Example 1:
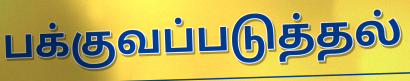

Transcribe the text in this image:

பக்குவப்படுத்தல்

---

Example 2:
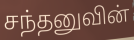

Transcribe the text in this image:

சந்தனுவின்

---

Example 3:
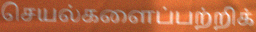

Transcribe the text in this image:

செயல்களைப்பற்றிக்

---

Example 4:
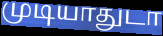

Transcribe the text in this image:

முடியாதுடா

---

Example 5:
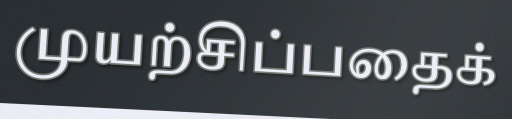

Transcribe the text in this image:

முயற்சிப்பதைக்